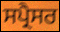
ਸਪ੍ਰੈਸਰ